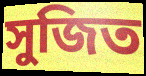
সুজিত